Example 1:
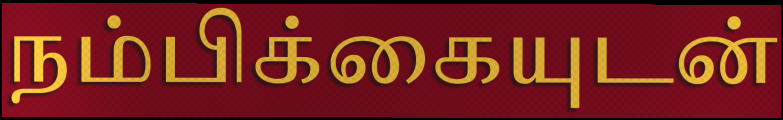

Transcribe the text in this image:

நம்பிக்கையுடன்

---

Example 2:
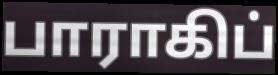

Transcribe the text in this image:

பாராகிப்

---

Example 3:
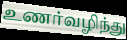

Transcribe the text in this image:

உணர்வழிந்து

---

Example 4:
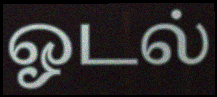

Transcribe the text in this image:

ஓடல்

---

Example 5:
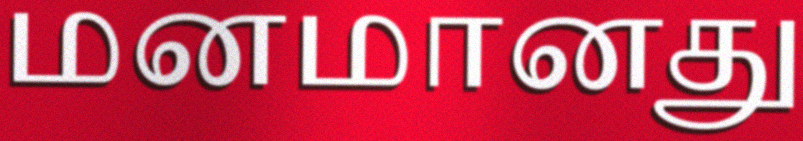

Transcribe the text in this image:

மனமானது